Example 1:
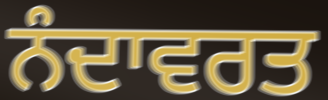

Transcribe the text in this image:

ਨੰਦਾਵਰਤ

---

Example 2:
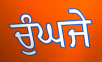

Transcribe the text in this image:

ਚੁੰਘਜੇ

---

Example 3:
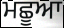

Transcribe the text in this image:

ਮਛੂਆ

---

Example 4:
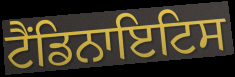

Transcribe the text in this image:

ਟੈਂਡਿਨਾਇਟਿਸ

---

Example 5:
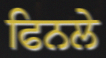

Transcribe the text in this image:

ਫਿਨਲੇ